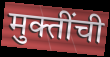
मुक्तींची